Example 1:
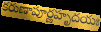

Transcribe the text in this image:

కరుణాపూర్ణహృదయః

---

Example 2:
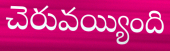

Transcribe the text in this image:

చెరువయ్యింది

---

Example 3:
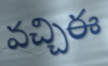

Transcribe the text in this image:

వచ్చిఈ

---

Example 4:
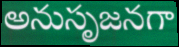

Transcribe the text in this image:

అనుసృజనగా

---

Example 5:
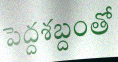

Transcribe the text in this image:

పెద్దశబ్దంతో